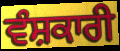
ਵੰਸ਼ਕਾਰੀ